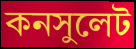
কনসুলেট